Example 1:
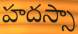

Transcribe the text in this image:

హదస్సా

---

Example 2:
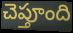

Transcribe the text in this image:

చెప్తూంది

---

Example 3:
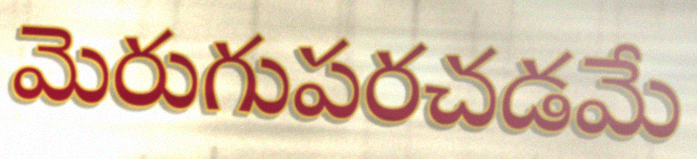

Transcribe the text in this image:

మెరుగుపరచడమే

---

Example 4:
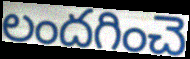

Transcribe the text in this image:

లందగించె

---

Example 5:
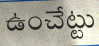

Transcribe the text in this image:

ఉంచేట్టు